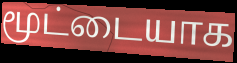
மூட்டையாக